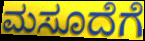
ಮಸೂದೆಗೆ